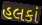
હલકાં